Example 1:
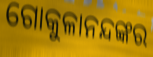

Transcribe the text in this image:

ଗୋକୁଳାନନ୍ଦଙ୍କର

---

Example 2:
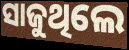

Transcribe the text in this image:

ସାଜୁଥିଲେ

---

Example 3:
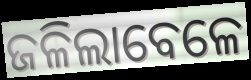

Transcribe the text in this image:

ଜଳିଲାବେଳେ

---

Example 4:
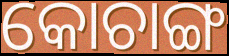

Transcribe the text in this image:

କୋଚାଙ୍ଗ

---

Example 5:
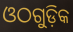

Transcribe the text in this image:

ଓଠଗୁଡ଼ିକ